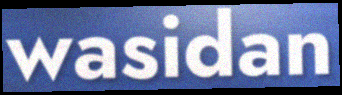
wasidan